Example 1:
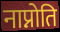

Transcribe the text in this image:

नाप्नोति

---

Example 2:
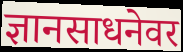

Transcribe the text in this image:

ज्ञानसाधनेवर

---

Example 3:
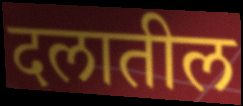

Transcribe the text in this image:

दलातील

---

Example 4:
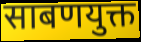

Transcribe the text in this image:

साबणयुक्त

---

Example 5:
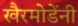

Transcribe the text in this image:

खैरमोडेंनी